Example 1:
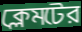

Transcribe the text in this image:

ক্লেমটের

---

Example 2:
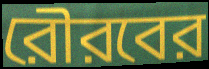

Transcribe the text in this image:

রৌরবের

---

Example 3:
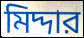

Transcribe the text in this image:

মিদ্দার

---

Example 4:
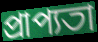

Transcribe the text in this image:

প্রাপ্যতা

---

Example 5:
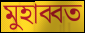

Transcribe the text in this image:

মুহাব্বত